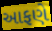
આફણે